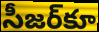
సీజర్‌కూ